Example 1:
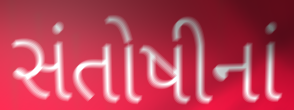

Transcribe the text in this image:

સંતોષીનાં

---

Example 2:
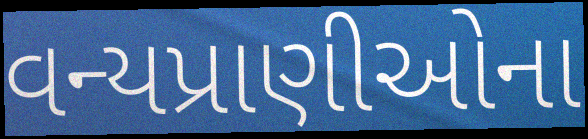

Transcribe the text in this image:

વન્યપ્રાણીઓના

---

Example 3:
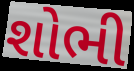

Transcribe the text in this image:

શોભી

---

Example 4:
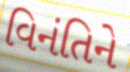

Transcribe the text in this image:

વિનંતિને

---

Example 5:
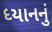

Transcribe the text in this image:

ધ્યાનનું